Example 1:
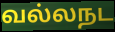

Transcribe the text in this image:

வல்லநட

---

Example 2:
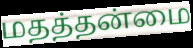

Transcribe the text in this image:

மதத்தன்மை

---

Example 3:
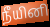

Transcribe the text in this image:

நீயினி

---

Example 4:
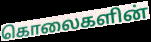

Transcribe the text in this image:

கொலைகளின்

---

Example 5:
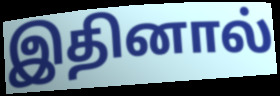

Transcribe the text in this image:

இதினால்